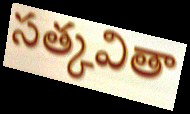
సత్కవితా